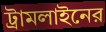
ট্রামলাইনের